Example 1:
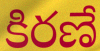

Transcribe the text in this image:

కిరణే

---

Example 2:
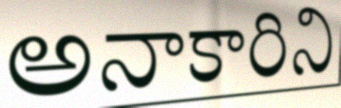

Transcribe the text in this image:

అనాకారిని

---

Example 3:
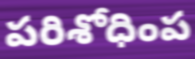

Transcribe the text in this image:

పరిశోధింప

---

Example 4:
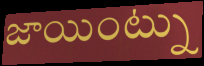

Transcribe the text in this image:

జాయింట్ను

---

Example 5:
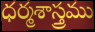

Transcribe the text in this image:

ధర్మశాస్త్రము